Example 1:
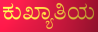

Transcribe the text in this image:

ಕುಖ್ಯಾತಿಯ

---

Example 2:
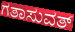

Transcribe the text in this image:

ಗತಾಸುವತ್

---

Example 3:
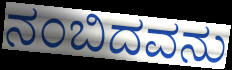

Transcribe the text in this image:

ನಂಬಿದವನು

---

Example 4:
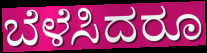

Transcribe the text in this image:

ಬೆಳೆಸಿದರೂ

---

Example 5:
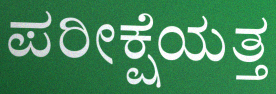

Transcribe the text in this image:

ಪರೀಕ್ಷೆಯತ್ತ